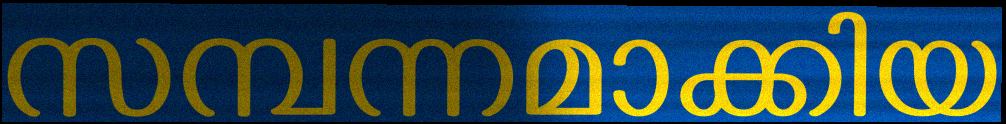
സമ്പന്നമാക്കിയ